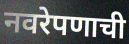
नवरेपणाची